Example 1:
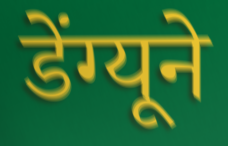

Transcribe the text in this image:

डेंग्यूने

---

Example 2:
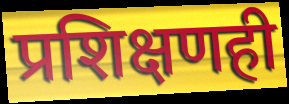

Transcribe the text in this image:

प्रशिक्षणही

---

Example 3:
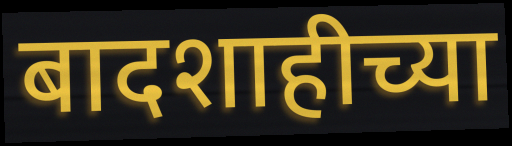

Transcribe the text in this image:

बादशाहीच्या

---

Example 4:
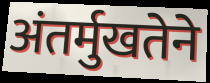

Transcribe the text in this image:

अंतर्मुखतेने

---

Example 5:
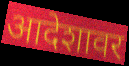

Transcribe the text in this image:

आदेशावर